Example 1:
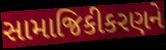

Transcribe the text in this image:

સામાજિકીકરણને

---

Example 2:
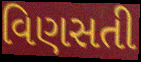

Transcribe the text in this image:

વિણસતી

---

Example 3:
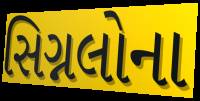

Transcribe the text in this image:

સિગ્નલોના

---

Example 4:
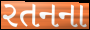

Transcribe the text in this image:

રતનના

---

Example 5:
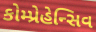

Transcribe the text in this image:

કોમ્પ્રેહેન્સિવ